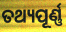
ତଥ୍ୟପୂର୍ଣ୍ଣ